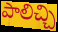
పాలిచ్చి